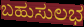
ಬಹುಸುಲಭ